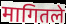
मागितले